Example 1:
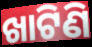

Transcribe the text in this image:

ଖାଟିଣି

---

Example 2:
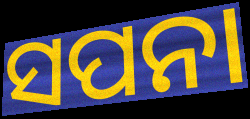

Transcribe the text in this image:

ସପନା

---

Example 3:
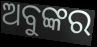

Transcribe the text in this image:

ଅବୁଙ୍କର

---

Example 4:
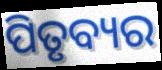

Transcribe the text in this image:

ପିତୃବ୍ୟର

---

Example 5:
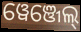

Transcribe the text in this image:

ୱେଞ୍ଜେଲ୍